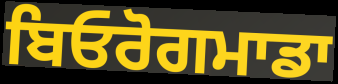
ਬਿਓਰੋਗਮਾਡਾ